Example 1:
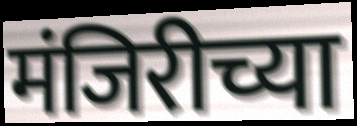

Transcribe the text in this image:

मंजिरीच्या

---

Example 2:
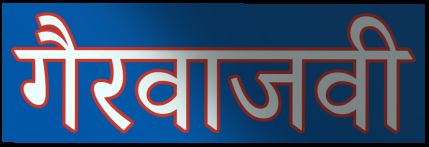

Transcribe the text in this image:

गैरवाजवी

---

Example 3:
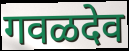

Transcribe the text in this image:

गवळदेव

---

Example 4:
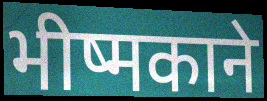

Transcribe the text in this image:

भीष्मकाने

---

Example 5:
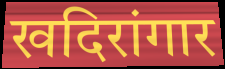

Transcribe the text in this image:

खदिरांगार